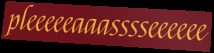
pleeeeeaaasssseeeeee